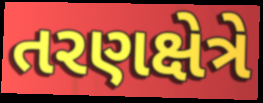
તરણક્ષેત્રે